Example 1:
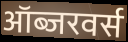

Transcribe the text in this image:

ऑब्जरवर्स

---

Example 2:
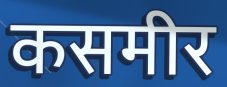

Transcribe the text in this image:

कसमीर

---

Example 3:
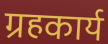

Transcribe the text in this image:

ग्रहकार्य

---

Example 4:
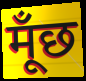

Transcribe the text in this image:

मूँछ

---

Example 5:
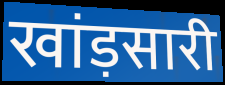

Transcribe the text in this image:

खांड़सारी